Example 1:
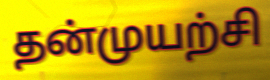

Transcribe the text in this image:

தன்முயற்சி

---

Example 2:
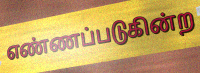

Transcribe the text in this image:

எண்ணப்படுகின்ற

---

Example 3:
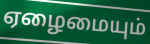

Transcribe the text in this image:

ஏழைமையும்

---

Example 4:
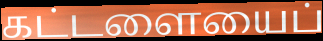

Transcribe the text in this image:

கட்டளையைப்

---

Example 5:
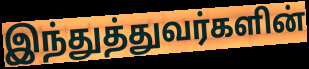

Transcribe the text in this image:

இந்துத்துவர்களின்